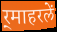
र्माहरलें